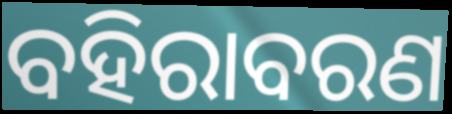
ବହିରାବରଣ